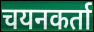
चयनकर्ता